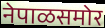
नेपाळसमोर